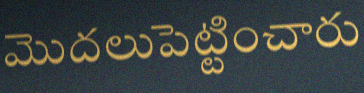
మొదలుపెట్టించారు